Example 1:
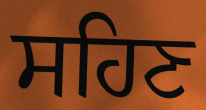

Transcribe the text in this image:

ਸਹਿਣ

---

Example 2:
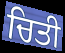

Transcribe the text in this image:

ਚਿਤੀ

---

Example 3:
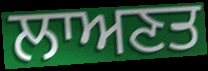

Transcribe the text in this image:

ਲਾਅਣਤ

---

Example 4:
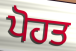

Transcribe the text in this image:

ਪੋਹਤ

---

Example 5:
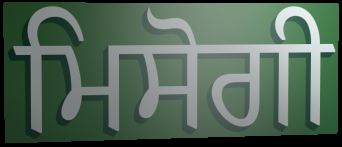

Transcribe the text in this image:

ਮਿਸੋਗੀ